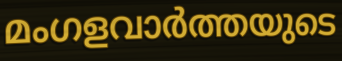
മംഗളവാർത്തയുടെ